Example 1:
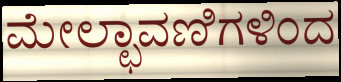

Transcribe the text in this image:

ಮೇಲ್ಛಾವಣಿಗಳಿಂದ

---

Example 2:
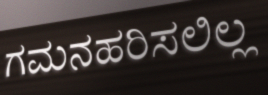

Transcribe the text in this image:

ಗಮನಹರಿಸಲಿಲ್ಲ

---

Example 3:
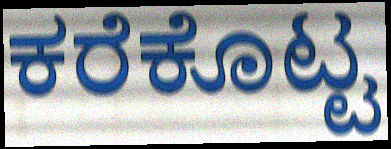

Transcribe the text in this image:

ಕರೆಕೊಟ್ಟ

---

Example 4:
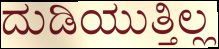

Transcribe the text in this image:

ದುಡಿಯುತ್ತಿಲ್ಲ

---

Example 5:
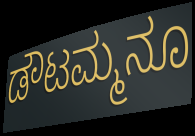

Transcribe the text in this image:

ಡೌಟಮ್ಮನೂ